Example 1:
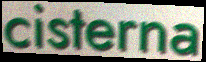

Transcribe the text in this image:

cisterna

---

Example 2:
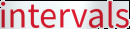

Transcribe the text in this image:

intervals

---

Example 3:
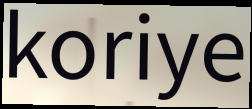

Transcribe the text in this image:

koriye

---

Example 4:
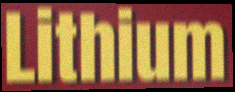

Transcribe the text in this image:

Lithium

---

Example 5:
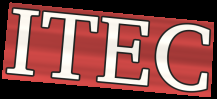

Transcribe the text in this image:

ITEC